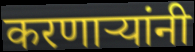
करणाऱ्यांनी